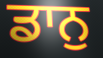
ਡਾਨੁ